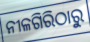
ନୀଳଗିରିଠାରୁ